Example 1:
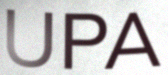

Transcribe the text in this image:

UPA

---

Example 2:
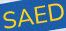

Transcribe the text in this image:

SAED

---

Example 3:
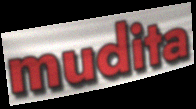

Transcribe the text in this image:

mudita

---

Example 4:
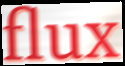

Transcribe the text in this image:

flux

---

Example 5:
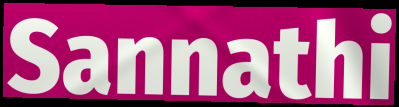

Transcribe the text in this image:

Sannathi